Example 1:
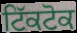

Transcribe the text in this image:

ਟਿੱਕਟੋਕ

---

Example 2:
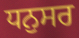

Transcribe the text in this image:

ਧਨੁਸਰ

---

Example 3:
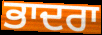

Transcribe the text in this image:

ਭਾਦਰਾ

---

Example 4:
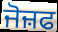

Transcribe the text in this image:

ਜੋਜ਼ਫ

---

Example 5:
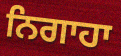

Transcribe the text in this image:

ਨਿਗਾਹਾ